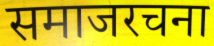
समाजरचना